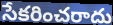
సేకరించరాదు